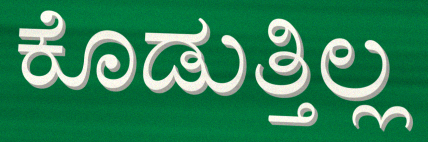
ಕೊಡುತ್ತಿಲ್ಲ